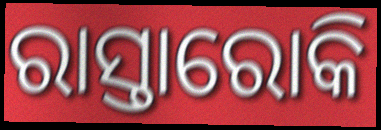
ରାସ୍ତାରୋକି